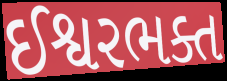
ઈશ્વરભક્ત